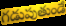
గడుపుతుండే